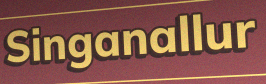
Singanallur